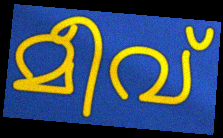
മീവ്